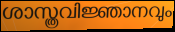
ശാസ്ത്രവിജ്ഞാനവും